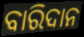
ବାରିଦାନ